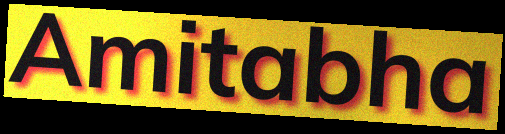
Amitabha